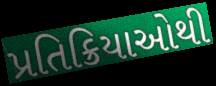
પ્રતિક્રિયાઓથી